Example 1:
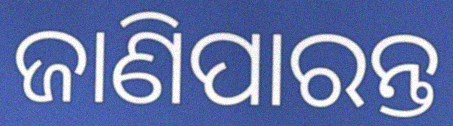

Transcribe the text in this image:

ଜାଣିପାରନ୍ତ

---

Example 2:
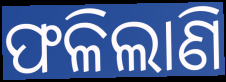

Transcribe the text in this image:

ଫଳିଲାଣି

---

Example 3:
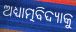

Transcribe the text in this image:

ଅଧ୍ୟାତ୍ମବିଦ୍ୟାକୁ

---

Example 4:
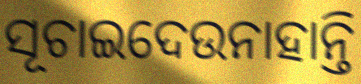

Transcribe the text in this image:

ସୂଚାଇଦେଉନାହାନ୍ତି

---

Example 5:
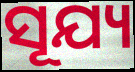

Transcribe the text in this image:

ସୂଯ୍ୟ